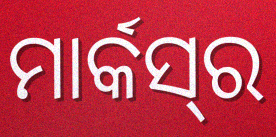
ମାର୍କସ୍‍ର